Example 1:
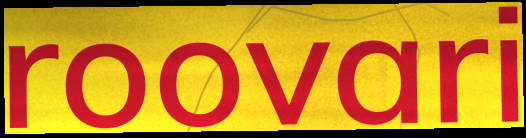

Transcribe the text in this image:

roovari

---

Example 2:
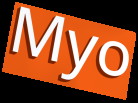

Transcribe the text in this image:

Myo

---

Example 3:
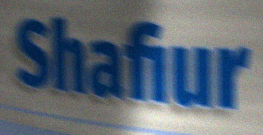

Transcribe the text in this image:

Shafiur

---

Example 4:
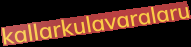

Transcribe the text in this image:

kallarkulavaralaru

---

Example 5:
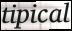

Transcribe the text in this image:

tipical